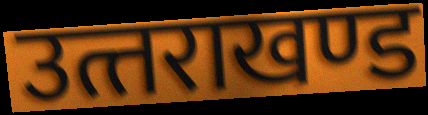
उत्‍तराखण्‍ड